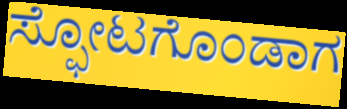
ಸ್ಫೋಟಗೊಂಡಾಗ